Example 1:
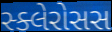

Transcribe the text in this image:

સ્ક્લેરોસસ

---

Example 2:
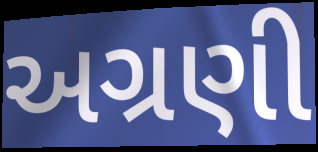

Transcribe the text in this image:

અગ્રણી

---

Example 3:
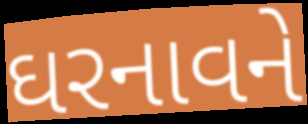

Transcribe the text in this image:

ઘરનાવને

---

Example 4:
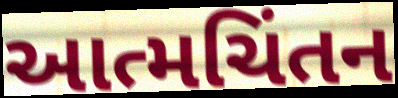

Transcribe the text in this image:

આત્મચિંતન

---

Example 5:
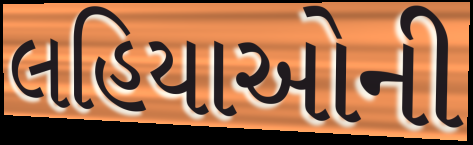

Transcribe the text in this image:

લહિયાઓની